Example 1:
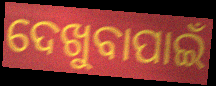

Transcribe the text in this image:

ଦେଖୁବାପାଇଁ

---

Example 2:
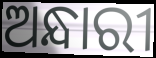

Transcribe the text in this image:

ଅନ୍ଧାରୀ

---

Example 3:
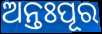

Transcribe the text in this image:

ଅନ୍ତଃପୂର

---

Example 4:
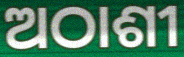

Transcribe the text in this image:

ଅଠାଶୀ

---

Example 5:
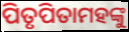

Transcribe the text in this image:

ପିତୃପିତାମହଙ୍କୁ